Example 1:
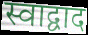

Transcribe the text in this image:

स्वाद्वाद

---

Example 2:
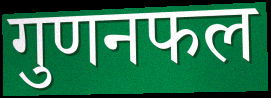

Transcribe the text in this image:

गुणनफल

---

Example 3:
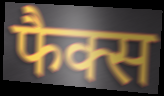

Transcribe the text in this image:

फैक्स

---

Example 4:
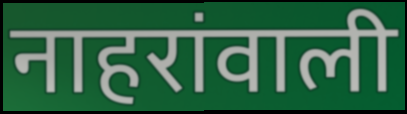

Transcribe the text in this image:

नाहरांवाली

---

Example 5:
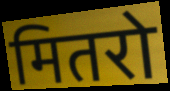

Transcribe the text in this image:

मितरो